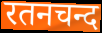
रतनचन्द